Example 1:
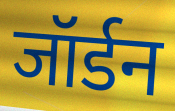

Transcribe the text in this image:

जॉर्डन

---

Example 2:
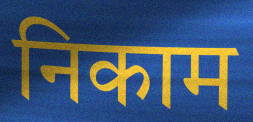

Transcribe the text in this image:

निकाम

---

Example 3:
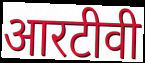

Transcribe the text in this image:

आरटीवी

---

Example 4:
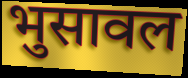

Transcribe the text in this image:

भुसावल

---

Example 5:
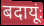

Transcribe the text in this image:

बदायूंः